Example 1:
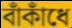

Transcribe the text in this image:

বাঁকাঁধে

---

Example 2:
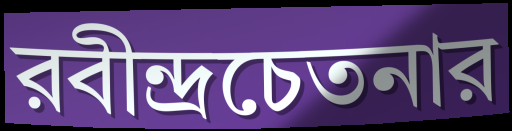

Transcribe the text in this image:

রবীন্দ্রচেতনার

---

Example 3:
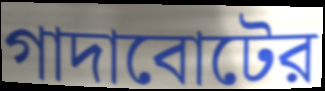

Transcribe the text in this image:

গাদাবোটের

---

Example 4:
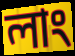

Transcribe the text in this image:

লাং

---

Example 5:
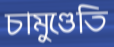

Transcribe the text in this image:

চামুণ্ডেতি